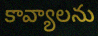
కావ్యాలను